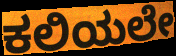
ಕಲಿಯಲೇ